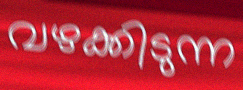
വഴക്കിടുന്ന